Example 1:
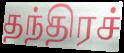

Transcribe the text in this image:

தந்திரச்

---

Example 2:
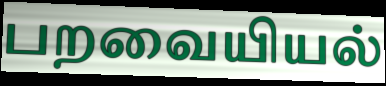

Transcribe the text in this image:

பறவையியல்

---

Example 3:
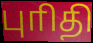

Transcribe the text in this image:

புரிதி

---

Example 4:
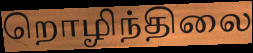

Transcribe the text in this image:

றொழிந்திலை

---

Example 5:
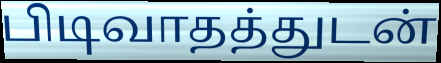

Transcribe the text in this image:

பிடிவாதத்துடன்